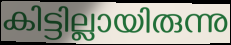
കിട്ടില്ലായിരുന്നു